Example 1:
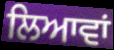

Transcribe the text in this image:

ਲਿਆਵਾਂ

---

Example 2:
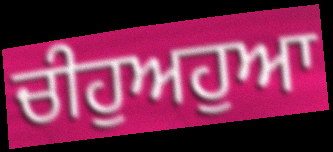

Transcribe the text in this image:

ਚੀਹੁਅਹੁਆ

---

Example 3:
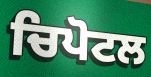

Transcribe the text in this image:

ਚਿਪੋਟਲ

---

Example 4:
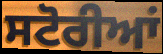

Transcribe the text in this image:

ਸਟੋਰੀਆਂ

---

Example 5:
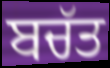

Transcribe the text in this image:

ਬਚੱਤ